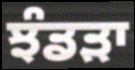
ਝੰਡੜਾ